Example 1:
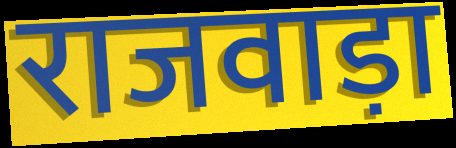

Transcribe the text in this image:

राजवाड़ा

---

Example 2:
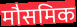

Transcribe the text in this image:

मौसमिक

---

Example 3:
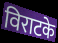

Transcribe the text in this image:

विराटके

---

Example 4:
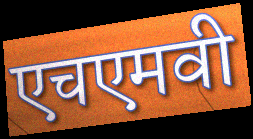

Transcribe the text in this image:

एचएमवी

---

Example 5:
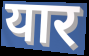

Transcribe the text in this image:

यार